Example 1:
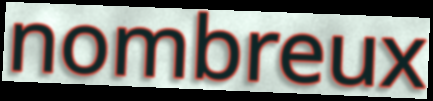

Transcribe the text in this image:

nombreux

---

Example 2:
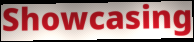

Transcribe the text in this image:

Showcasing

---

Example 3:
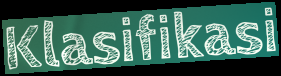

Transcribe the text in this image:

Klasifikasi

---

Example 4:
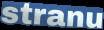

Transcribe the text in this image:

stranu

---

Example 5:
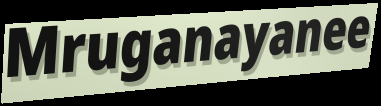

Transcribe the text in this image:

Mruganayanee